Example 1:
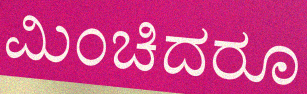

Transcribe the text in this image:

ಮಿಂಚಿದರೂ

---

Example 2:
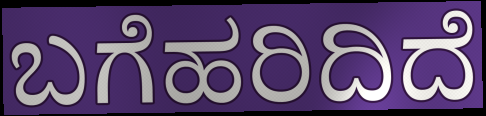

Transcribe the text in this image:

ಬಗೆಹರಿದಿದೆ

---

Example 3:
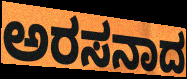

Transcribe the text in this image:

ಅರಸನಾದ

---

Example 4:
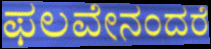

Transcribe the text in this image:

ಫಲವೇನಂದರೆ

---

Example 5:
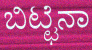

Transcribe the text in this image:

ಬಿಟ್ಟೆನಾ